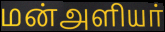
மன்அளியர்